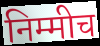
निम्मीच